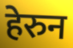
हेरुन